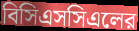
বিসিএসসিএলের